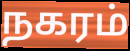
நகரம்